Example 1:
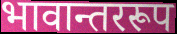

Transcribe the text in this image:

भावान्तररूप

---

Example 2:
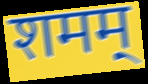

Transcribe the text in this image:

शमम्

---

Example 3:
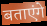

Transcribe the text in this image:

बताएंगे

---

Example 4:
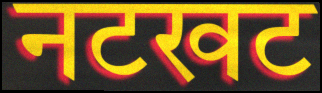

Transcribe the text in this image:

नटखट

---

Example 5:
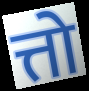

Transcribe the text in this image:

त्तो